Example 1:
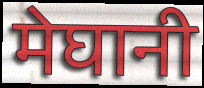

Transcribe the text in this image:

मेघानी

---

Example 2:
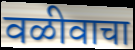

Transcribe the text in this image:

वळीवाचा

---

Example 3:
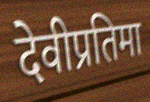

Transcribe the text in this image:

देवीप्रतिमा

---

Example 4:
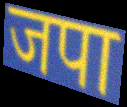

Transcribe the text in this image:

जपा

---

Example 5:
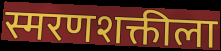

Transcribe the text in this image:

स्मरणशक्तीला